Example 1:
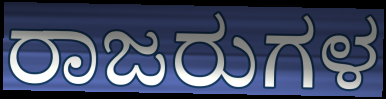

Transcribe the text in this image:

ರಾಜರುಗಳ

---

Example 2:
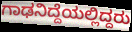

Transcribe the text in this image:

ಗಾಢನಿದ್ದೆಯಲ್ಲಿದ್ದರು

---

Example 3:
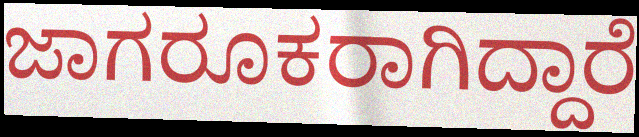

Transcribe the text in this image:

ಜಾಗರೂಕರಾಗಿದ್ದಾರೆ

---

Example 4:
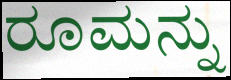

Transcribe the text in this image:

ರೂಮನ್ನು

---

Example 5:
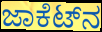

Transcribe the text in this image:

ಜಾಕೆಟ್‌ನ